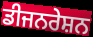
ਡੀਜਨਰੇਸ਼ਨ